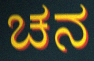
ಚನ